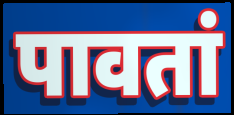
पावतां